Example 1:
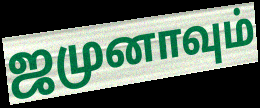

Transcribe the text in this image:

ஜமுனாவும்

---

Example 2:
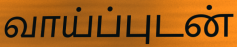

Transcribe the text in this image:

வாய்ப்புடன்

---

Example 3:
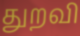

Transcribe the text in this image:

துறவி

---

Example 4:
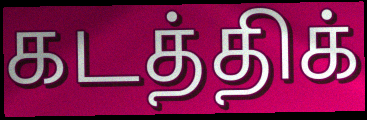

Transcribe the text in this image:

கடத்திக்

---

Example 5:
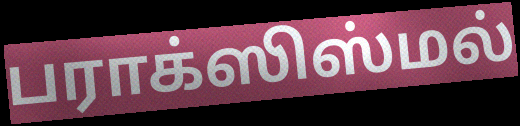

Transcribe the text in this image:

பராக்ஸிஸ்மல்